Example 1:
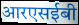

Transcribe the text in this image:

आरएसईबी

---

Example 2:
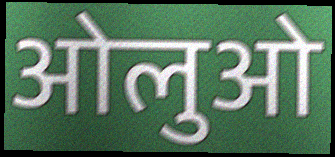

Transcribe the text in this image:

ओलुओ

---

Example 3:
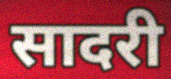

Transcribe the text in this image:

सादरी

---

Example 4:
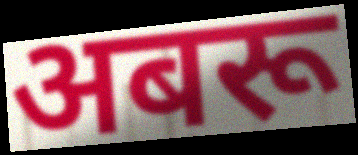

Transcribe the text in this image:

अबरू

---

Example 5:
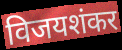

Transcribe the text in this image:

विजयशंकर